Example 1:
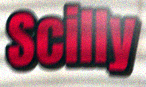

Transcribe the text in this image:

Scilly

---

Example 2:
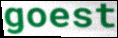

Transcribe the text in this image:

goest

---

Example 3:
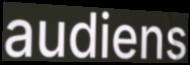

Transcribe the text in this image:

audiens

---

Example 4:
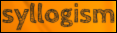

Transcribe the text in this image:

syllogism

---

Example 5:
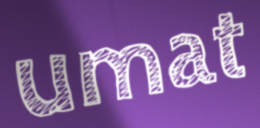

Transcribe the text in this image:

umat